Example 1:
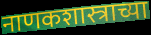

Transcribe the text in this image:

नाणकशास्त्राच्या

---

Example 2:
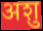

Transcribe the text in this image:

अशु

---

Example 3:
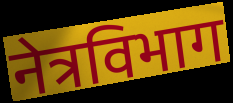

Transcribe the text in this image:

नेत्रविभाग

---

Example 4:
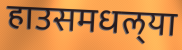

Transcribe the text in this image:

हाउसमधल्या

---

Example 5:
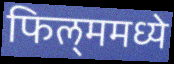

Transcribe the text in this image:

फिल्ममध्ये